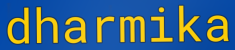
dharmika